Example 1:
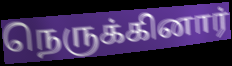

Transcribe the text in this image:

நெருக்கினார்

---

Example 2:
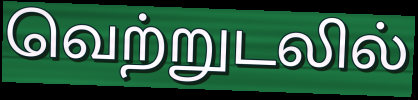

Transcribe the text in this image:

வெற்றுடலில்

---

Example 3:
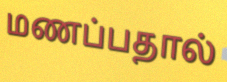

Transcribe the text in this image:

மணப்பதால்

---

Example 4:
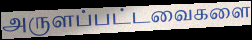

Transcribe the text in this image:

அருளப்பட்டவைகளை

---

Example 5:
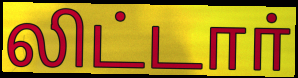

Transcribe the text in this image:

லிட்டார்